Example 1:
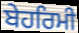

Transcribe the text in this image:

ਬੇਹਰਿਮੀ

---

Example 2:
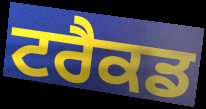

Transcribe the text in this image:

ਟਰੈਕਡ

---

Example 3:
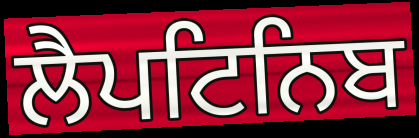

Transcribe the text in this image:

ਲੈਪਟਿਨਿਬ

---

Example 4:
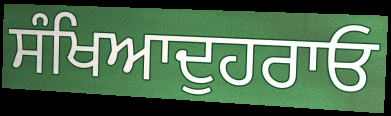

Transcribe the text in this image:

ਸੰਖਿਆਦੁਹਰਾਓ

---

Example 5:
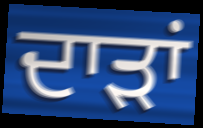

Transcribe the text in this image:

ਦਾੜਾਂ